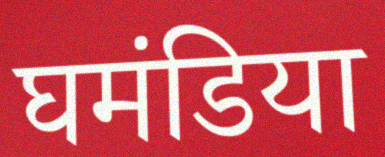
घमंडिया